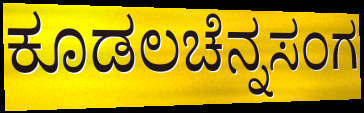
ಕೂಡಲಚೆನ್ನಸಂಗ